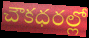
చౌకధరల్లో